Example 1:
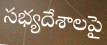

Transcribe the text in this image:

సభ్యదేశాలపై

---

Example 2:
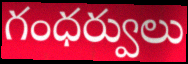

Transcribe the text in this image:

గంధర్వులు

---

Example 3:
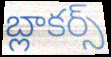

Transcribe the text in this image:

బ్లాకర్స్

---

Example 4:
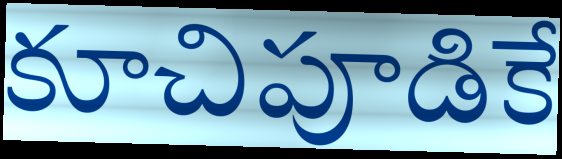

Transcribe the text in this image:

కూచిపూడికే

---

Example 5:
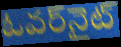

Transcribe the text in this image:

ఓవర్‌నైట్